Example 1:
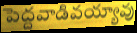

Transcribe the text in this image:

పెద్దవాడివయ్యావు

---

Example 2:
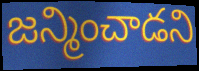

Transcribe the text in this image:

జన్మించాడని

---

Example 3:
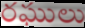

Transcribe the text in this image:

రఘులు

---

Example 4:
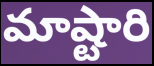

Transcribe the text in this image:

మాష్టారి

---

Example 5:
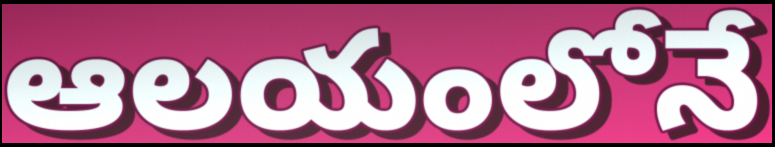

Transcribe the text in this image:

ఆలయంలోనే